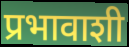
प्रभावाशी